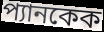
প্যানকেক